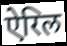
ऐरिल